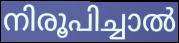
നിരൂപിച്ചാൽ